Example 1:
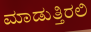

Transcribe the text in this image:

ಮಾಡುತ್ತಿರಲಿ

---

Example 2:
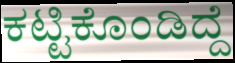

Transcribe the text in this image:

ಕಟ್ಟಿಕೊಂಡಿದ್ದೆ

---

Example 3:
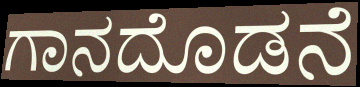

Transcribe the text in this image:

ಗಾನದೊಡನೆ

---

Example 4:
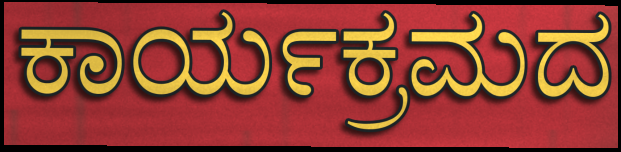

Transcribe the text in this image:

ಕಾರ್ಯಕ್ರಮದ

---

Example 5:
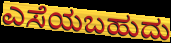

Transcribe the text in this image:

ಎಸೆಯಬಹುದು